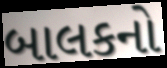
બાલકનો